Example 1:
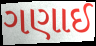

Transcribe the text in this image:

ગણાઈ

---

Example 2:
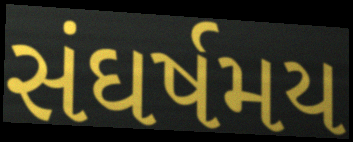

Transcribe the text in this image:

સંઘર્ષમય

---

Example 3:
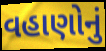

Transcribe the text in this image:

વહાણોનું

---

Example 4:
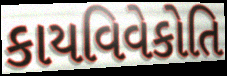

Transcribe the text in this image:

કાયવિવેકોતિ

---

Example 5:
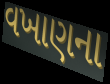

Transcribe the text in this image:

વખાણના